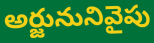
అర్జునునివైపు